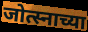
जोत्स्नाच्या